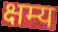
क्षम्य